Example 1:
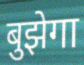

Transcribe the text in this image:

बुझेगा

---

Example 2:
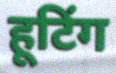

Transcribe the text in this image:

हूटिंग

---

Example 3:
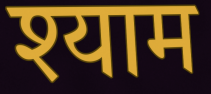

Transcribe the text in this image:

श्याम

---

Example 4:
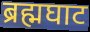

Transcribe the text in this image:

ब्रह्मघाट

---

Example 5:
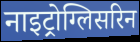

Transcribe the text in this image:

नाइट्रोग्लिसरिन